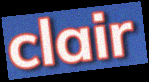
clair